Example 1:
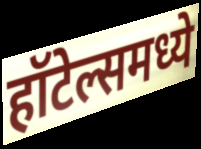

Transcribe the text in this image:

हॉटेल्समध्ये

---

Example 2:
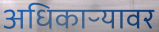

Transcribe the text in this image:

अधिकाऱ्यावर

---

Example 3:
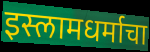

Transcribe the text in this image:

इस्लामधर्माचा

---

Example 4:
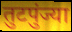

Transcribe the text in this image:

तुटपुंज्या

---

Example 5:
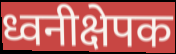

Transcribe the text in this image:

ध्वनीक्षेपक